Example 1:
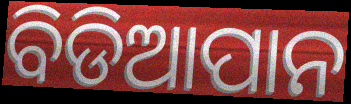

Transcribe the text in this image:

ବିଡିଆପାନ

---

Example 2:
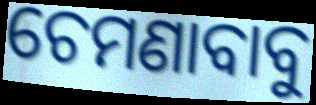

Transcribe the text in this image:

ଚେମଣାବାବୁ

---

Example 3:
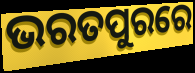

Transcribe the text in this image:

ଭରତପୁରରେ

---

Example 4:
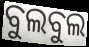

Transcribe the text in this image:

ବୁଲବୁଲ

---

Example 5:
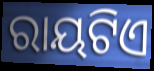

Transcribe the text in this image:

ରାୟଟିଏ